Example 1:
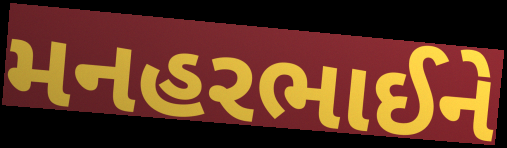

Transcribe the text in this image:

મનહરભાઈને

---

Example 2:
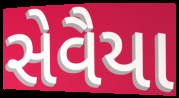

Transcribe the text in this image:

સેવૈયા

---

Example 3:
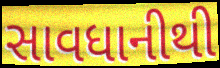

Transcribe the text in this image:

સાવધાનીથી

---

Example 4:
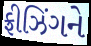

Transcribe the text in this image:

ફ્રીઝિંગને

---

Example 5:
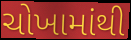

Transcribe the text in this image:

ચોખામાંથી